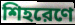
শিহরেণে